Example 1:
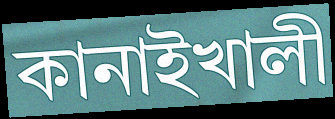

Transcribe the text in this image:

কানাইখালী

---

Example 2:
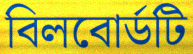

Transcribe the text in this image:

বিলবোর্ডটি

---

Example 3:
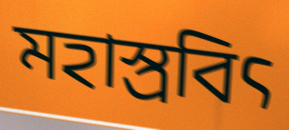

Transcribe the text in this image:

মহাস্ত্রবিৎ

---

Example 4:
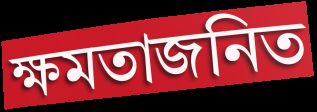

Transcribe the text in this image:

ক্ষমতাজনিত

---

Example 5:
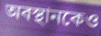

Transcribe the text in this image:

অবস্থানকেও